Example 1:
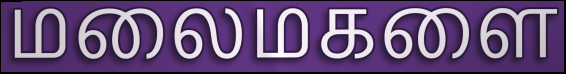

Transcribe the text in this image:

மலைமகளை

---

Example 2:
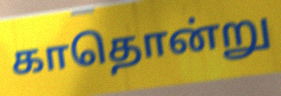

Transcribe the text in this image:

காதொன்று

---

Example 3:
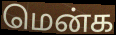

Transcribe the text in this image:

மென்க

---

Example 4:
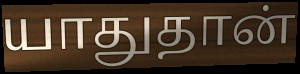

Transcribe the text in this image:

யாதுதான்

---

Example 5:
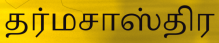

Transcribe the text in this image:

தர்மசாஸ்திர